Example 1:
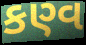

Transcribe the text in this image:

કણ્વ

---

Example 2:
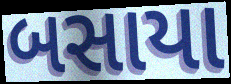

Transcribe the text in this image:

બસાયા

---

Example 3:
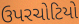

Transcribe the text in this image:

ઉપરચોટિયો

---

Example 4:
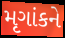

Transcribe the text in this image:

મૃગાંકને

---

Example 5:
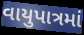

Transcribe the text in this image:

વાયુપાત્રમાં